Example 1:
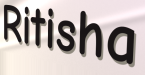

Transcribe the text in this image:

Ritisha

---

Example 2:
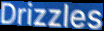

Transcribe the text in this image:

Drizzles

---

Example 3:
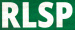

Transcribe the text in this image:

RLSP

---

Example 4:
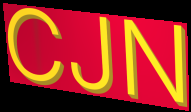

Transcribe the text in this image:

CJN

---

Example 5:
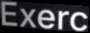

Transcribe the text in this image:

Exerc